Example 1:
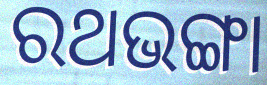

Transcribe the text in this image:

ରଥଭଙ୍ଗା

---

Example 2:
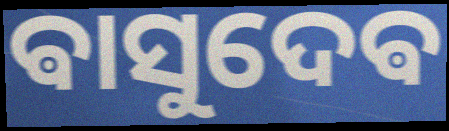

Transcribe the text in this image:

ଵାସୁଦେଵ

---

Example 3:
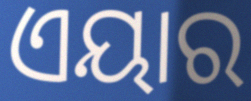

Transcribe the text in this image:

ଏୟାର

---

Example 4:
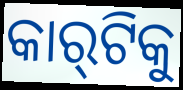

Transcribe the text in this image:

କାର୍‌ଟିକୁ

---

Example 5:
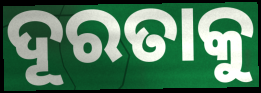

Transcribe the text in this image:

ଦୂରତାକୁ